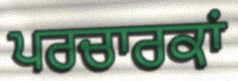
ਪਰਚਾਰਕਾਂ